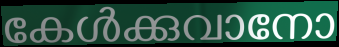
കേൾക്കുവാനോ